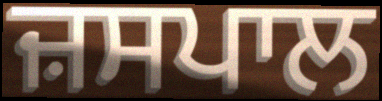
ਜ਼ਸਪਾਲ